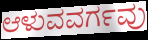
ಆಳುವವರ್ಗವು